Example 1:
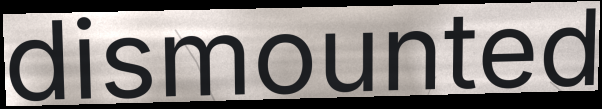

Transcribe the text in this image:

dismounted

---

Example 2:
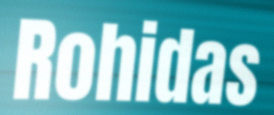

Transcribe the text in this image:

Rohidas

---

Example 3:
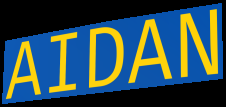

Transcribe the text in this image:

AIDAN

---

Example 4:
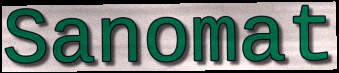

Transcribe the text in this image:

Sanomat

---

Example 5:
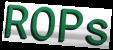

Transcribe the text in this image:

ROPs